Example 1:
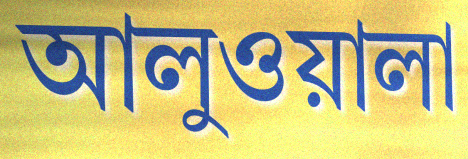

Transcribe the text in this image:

আলুওয়ালা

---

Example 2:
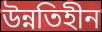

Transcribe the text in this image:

উন্নতিহীন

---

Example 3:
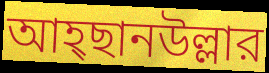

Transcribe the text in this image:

আহ্ছানউল্লার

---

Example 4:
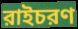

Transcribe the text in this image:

রাইচরণ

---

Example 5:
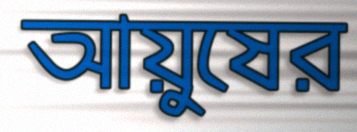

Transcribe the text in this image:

আয়ুষের